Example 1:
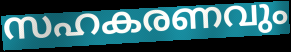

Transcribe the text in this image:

സഹകരണവും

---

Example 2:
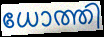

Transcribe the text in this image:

ധോത്തി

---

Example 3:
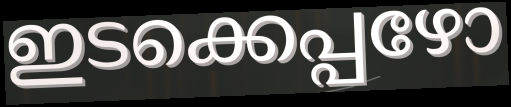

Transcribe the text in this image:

ഇടക്കെപ്പഴോ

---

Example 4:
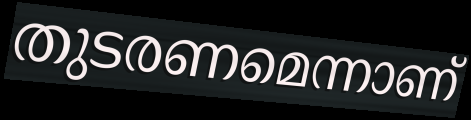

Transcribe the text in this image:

തുടരണമെന്നാണ്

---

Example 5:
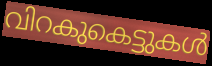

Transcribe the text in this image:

വിറകുകെട്ടുകൾ